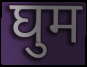
घुम